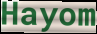
Hayom